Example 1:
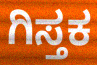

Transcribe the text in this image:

ಗಿಸ್ತಕ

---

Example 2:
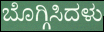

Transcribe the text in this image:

ಬೊಗ್ಗಿಸಿದಳು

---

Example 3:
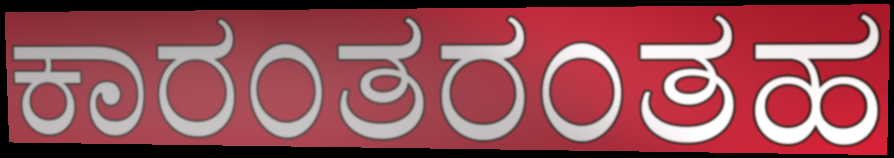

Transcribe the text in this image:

ಕಾರಂತರಂತಹ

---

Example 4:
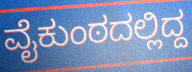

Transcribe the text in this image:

ವೈಕುಂಠದಲ್ಲಿದ್ದ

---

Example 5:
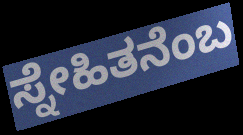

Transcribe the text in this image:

ಸ್ನೇಹಿತನೆಂಬ